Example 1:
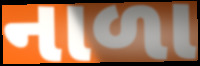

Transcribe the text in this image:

નાળા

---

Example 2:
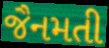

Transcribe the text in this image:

જૈનમતી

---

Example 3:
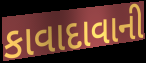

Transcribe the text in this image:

કાવાદાવાની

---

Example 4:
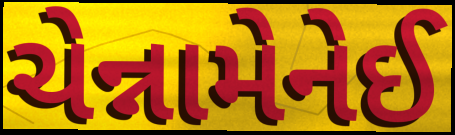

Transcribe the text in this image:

ચેન્નામેનેઈ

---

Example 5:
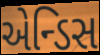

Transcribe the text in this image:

એન્ડિસ